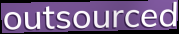
outsourced